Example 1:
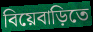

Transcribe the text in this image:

বিয়েবাড়িতে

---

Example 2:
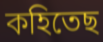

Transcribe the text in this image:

কহিতেছ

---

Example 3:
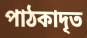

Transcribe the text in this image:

পাঠকাদৃত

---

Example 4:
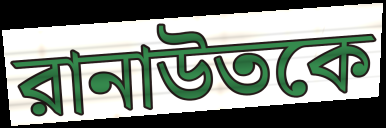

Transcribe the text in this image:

রানাউতকে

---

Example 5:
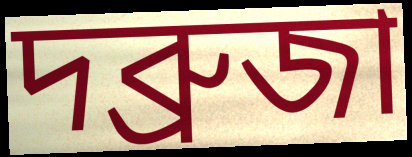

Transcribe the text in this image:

দব্রুজা